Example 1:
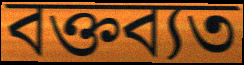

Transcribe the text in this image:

বক্তব্যত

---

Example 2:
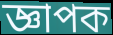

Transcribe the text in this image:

জ্ঞাপক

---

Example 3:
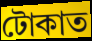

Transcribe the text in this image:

টোকাত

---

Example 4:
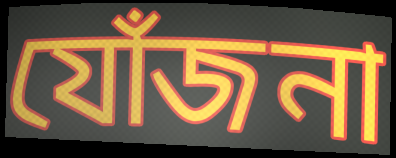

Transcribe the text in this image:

যোঁজনা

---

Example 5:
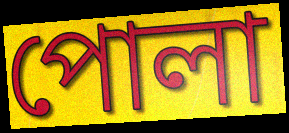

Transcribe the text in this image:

পোলা